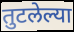
तुटलेल्या